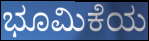
ಭೂಮಿಕೆಯ